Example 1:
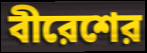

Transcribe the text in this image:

বীরেশের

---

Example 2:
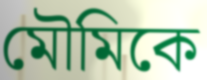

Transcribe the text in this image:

মৌমিকে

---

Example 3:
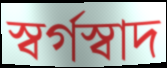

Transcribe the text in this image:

স্বর্গস্বাদ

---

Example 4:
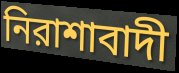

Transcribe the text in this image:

নিরাশাবাদী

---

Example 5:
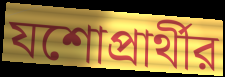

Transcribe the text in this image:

যশোপ্রার্থীর